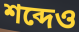
শব্দেও